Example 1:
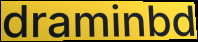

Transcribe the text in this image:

draminbd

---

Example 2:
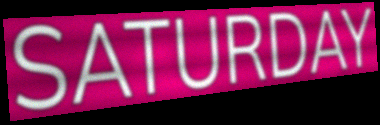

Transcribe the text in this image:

SATURDAY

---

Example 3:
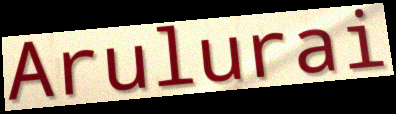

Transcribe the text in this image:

Arulurai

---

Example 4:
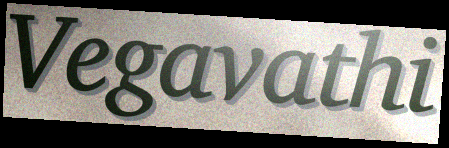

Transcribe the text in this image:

Vegavathi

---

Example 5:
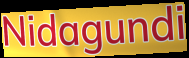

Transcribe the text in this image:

Nidagundi